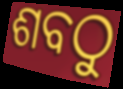
ଶବଠୁ